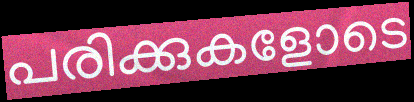
പരിക്കുകളോടെ